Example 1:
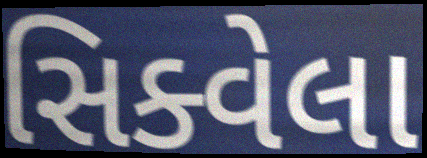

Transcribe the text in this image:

સિક્વેલા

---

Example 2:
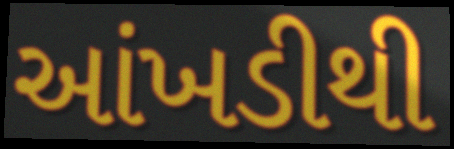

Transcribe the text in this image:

આંખડીથી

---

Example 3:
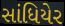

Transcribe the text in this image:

સાંધિયેર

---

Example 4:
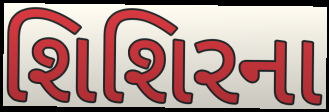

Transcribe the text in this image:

શિશિરના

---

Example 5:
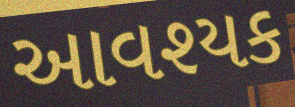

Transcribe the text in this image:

આવશ્યક